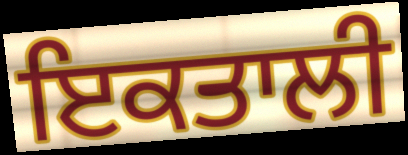
ਇਕਤਾਲੀ